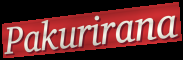
Pakurirana